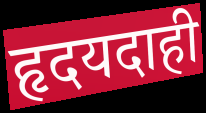
हृदयदाही